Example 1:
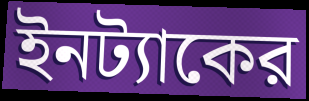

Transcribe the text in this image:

ইনট্যাকের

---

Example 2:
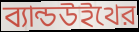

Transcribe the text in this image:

ব্যান্ডউইথের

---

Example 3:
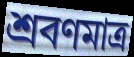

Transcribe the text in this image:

শ্রবণমাত্র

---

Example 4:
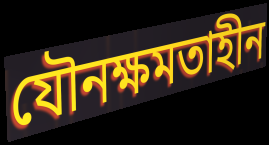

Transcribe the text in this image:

যৌনক্ষমতাহীন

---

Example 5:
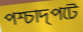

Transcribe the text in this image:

পশ্চাদ্‌পটে